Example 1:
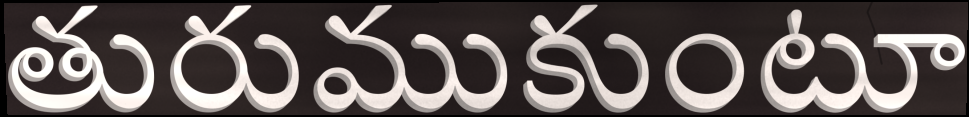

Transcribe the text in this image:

తురుముకుంటూ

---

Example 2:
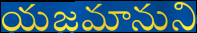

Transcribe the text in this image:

యజమానుని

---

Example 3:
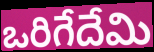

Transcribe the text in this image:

ఒరిగేదేమి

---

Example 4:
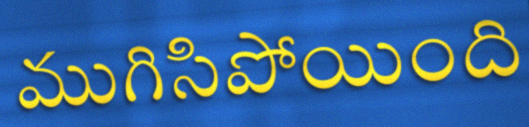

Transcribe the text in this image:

ముగిసిపోయింది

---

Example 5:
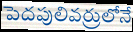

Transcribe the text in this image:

పెదపులివర్రులోనే